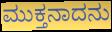
ಮುಕ್ತನಾದನು